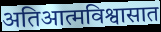
अतिआत्मविश्वासात